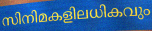
സിനിമകളിലധികവും